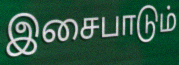
இசைபாடும்